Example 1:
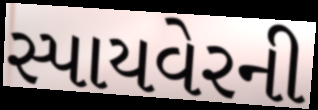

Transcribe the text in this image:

સ્પાયવેરની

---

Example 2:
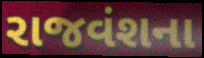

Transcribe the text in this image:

રાજવંશના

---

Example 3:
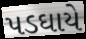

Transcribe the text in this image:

પડઘાયે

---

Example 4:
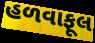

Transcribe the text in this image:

હળવાફૂલ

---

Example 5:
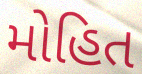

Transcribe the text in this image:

મોહિત